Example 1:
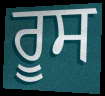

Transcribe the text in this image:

ਰੂਸ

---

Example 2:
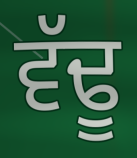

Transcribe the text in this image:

ਵੱਢੂ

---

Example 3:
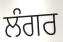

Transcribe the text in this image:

ਲੰਗਰ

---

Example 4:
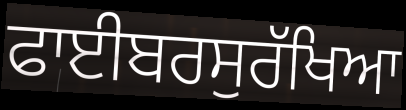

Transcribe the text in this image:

ਫਾਈਬਰਸੁਰੱਖਿਆ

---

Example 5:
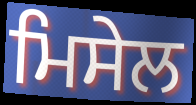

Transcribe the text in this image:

ਮਿਸੇਲ